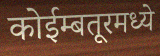
कोईम्बतूरमध्ये